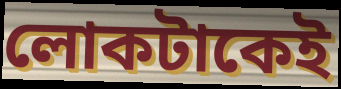
লোকটাকেই